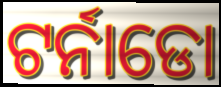
ଟର୍ନାଡୋ